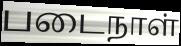
படைநாள்